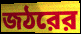
জঠরের